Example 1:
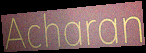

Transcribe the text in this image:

Acharan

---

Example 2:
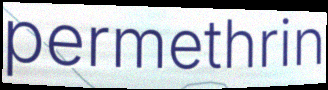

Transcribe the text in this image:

permethrin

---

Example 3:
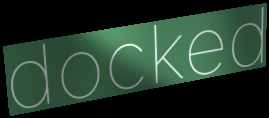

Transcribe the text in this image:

docked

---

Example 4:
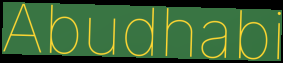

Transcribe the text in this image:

Abudhabi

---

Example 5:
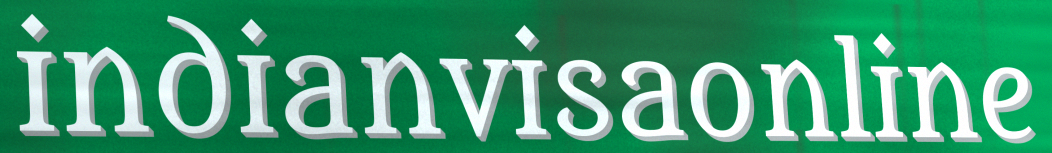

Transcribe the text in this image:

indianvisaonline